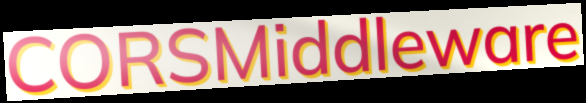
CORSMiddleware